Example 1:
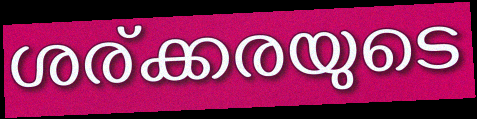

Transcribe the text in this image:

ശര്ക്കരയുടെ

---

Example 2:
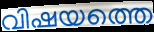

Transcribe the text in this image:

വിഷയത്തെ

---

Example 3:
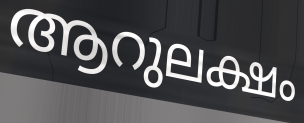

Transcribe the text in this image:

ആറുലക്ഷം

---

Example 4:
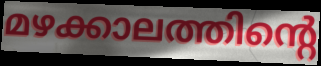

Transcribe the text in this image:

മഴക്കാലത്തിന്റെ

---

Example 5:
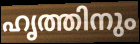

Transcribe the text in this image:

ഹൃത്തിനും